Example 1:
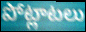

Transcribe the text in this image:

పోట్లాటలు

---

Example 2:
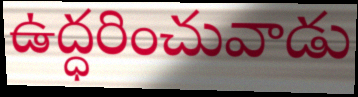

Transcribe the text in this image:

ఉద్ధరించువాడు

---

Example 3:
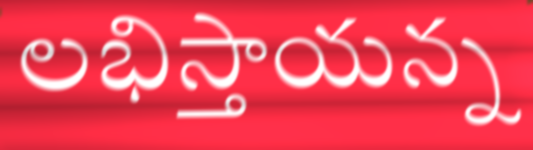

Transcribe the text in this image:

లభిస్తాయన్న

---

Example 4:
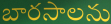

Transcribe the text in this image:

బారసాలను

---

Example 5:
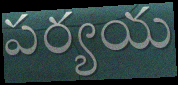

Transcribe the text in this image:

పర్యయ